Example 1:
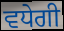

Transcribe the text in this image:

ਵਧੇਗੀ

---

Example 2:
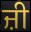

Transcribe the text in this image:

ਜ਼ੀ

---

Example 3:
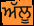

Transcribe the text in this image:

ਅੱਲੂ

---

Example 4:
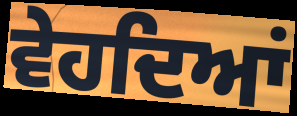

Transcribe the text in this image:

ਵੇਹਦਿਆਂ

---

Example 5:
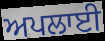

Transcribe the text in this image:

ਅਪਲਾਈ